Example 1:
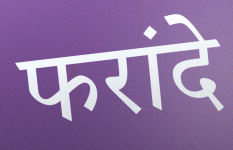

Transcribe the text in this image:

फरांदे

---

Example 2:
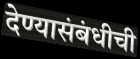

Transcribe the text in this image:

देण्यासंबंधीची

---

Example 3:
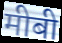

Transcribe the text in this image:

मीबी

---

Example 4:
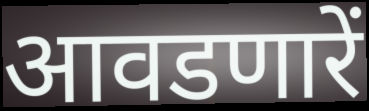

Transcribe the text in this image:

आवडणारें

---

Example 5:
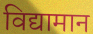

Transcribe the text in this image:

विद्यामान